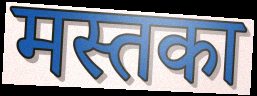
मस्तका